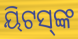
ୟିଟସ୍‌ଙ୍କ